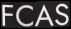
FCAS